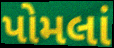
પોમલાં